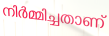
നിർമ്മിച്ചതാണ്